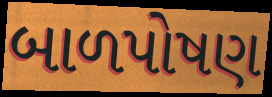
બાળપોષણ